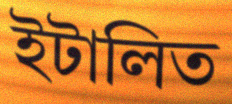
ইটালিত